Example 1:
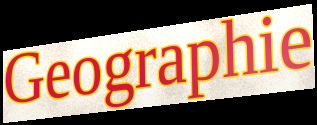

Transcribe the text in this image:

Geographie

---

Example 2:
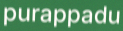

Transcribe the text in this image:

purappadu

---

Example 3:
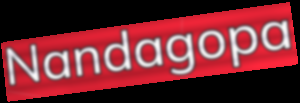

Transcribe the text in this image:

Nandagopa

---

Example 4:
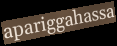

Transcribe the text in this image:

apariggahassa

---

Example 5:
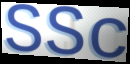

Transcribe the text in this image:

SSc